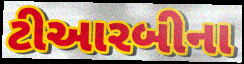
ટીઆરબીના